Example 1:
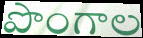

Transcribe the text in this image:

పొంగాల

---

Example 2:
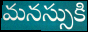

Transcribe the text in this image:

మనస్సుకి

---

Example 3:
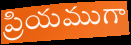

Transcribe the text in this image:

ప్రియముగా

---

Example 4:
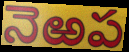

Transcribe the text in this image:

నెఱప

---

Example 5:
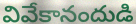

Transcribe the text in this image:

వివేకానందుడి